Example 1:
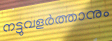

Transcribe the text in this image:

നട്ടുവളർത്താനും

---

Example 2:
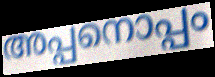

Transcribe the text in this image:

അപ്പനൊപ്പം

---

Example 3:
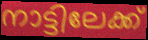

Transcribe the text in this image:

നാട്ടിലേക്ക്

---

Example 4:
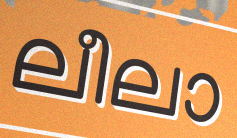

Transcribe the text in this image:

ലീലാ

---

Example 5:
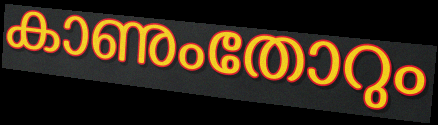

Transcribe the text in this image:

കാണുംതോറും